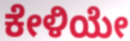
ಕೇಳಿಯೇ